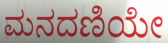
ಮನದಣಿಯೇ